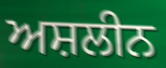
ਅਸ਼ਲੀਨ